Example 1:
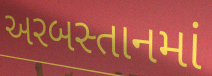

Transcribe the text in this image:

અરબસ્તાનમાં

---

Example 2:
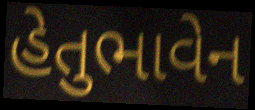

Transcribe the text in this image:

હેતુભાવેન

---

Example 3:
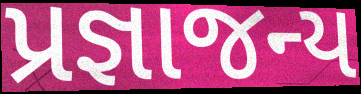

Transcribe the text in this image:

પ્રજ્ઞાજન્ય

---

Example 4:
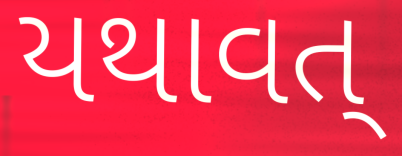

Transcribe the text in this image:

યથાવત્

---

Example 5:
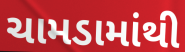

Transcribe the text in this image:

ચામડામાંથી